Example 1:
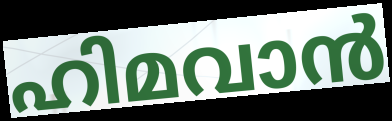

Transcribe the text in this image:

ഹിമവാൻ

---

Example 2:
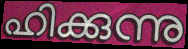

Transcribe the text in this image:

ഹിക്കുന്നു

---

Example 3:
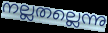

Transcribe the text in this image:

നല്ലതല്ലെന്നു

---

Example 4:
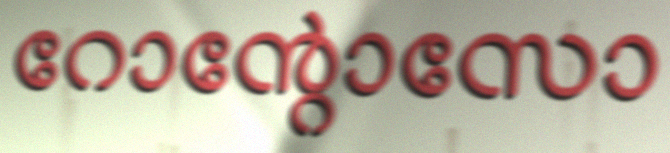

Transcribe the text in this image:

റോന്റോസോ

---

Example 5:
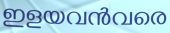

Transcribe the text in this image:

ഇളയവൻവരെ